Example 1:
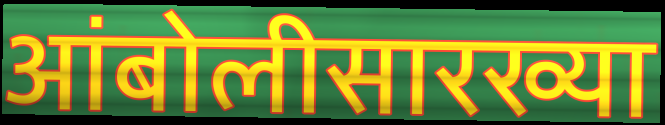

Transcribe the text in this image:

आंबोलीसारख्या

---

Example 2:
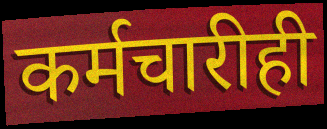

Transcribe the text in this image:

कर्मचारीही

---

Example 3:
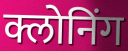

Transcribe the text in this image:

क्लोनिंग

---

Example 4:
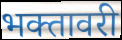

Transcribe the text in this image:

भक्तावरी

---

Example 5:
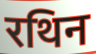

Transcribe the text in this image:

रथिन